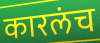
कारलंच